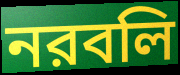
নরবলি